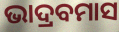
ଭାଦ୍ରବମାସ